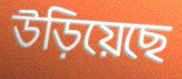
উড়িয়েছে